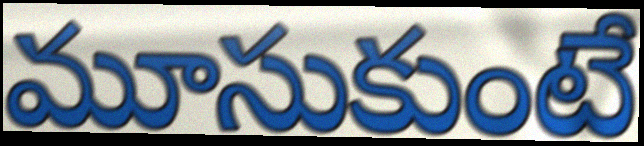
మూసుకుంటే